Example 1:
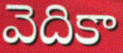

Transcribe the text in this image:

వెదికా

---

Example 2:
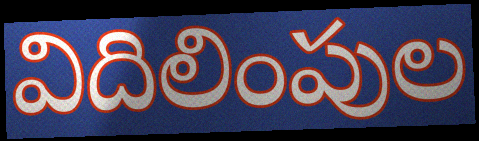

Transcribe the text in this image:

విదిలింపుల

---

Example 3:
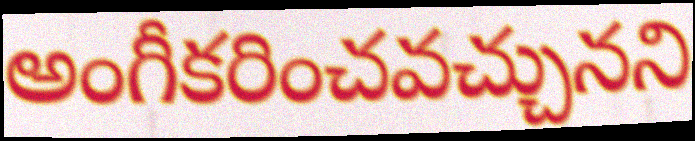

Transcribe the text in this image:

అంగీకరించవచ్చునని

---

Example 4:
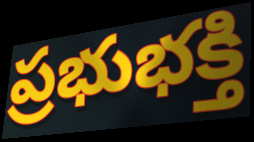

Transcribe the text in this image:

ప్రభుభక్తి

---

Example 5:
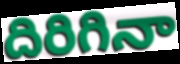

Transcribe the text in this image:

దిరిగినా